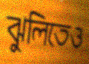
ঝুলিতেও